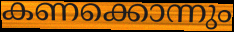
കണക്കൊന്നും